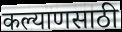
कल्याणसाठी